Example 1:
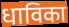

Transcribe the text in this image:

धाविका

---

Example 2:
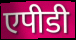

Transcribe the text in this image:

एपीडी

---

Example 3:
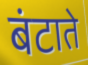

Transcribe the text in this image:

बंटाते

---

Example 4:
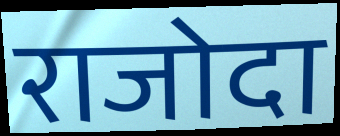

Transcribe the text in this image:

राजोदा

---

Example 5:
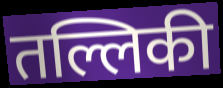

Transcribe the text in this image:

तल्लिकी